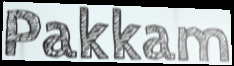
Pakkam